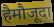
हैमौजूदा